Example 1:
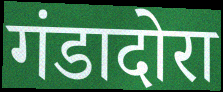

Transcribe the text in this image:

गंडादोरा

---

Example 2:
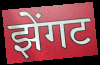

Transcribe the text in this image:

झेंगट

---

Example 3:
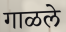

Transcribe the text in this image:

गाळले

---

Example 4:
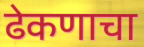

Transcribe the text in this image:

ढेकणाचा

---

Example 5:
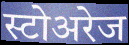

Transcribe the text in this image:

स्टोअरेज